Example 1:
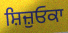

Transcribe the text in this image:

ਸ਼ਿਜ਼ੁਓਕਾ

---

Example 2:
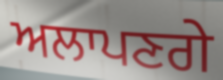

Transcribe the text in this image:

ਅਲਾਪਣਗੇ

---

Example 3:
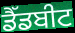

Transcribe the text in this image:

ਡੈੱਡਬੀਟ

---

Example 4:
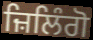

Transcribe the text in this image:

ਜ਼ਿਲਿੰਗੋ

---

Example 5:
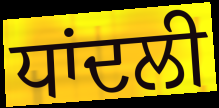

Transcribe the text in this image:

ਧਾਂਦਲੀ